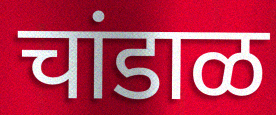
चांडाळ